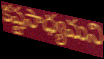
కష్టసాధ్యమని